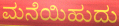
ಮನೆಯಿಹುದು